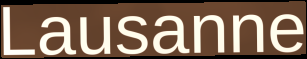
Lausanne